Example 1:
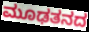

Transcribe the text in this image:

ಮೂಢತನದ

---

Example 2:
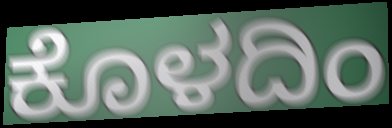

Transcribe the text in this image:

ಕೊಳದಿಂ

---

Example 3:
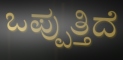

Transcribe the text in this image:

ಒಪ್ಪುತ್ತಿದೆ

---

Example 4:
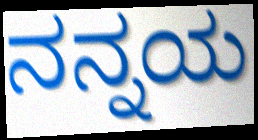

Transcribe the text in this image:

ನನ್ನಯ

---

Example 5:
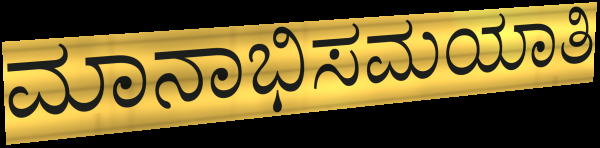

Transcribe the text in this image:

ಮಾನಾಭಿಸಮಯಾತಿ